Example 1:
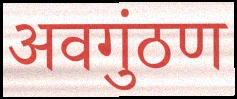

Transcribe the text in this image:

अवगुंठण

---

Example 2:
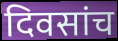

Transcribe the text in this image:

दिवसांच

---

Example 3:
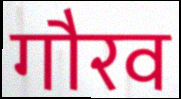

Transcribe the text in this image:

गौरव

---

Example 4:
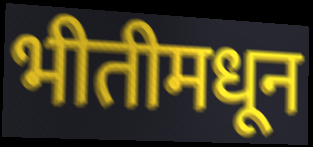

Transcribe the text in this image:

भीतीमधून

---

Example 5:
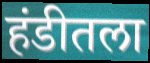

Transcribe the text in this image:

हंडीतला